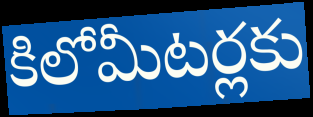
కిలోమీటర్లకు